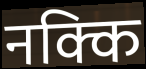
नक्कि